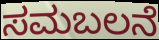
ಸಮಬಲನೆ